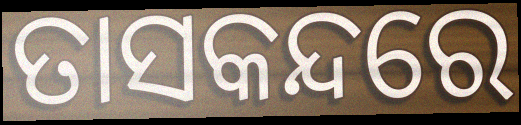
ତାସକନ୍ଦରେ